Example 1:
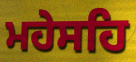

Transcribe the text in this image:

ਮਹੇਸਹਿ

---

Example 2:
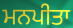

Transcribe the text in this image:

ਮਨਪੀਤਾ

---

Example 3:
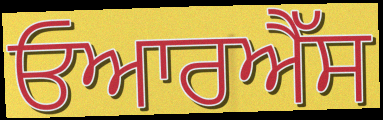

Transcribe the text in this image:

ਓਆਰਐੱਸ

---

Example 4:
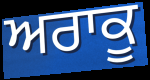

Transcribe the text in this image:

ਅਰਾਕੂ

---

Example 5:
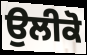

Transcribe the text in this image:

ਉਲੀਕੋ